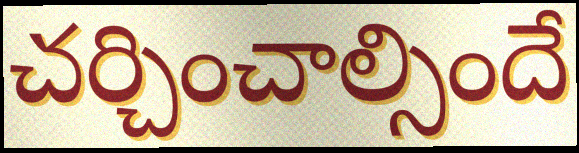
చర్చించాల్సిందే